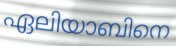
ഏലിയാബിനെ